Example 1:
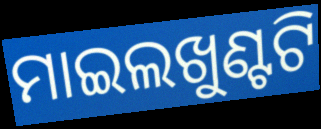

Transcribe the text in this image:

ମାଇଲଖୁଣ୍ଟଟି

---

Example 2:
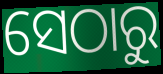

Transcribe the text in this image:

ସେଠାରୁ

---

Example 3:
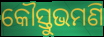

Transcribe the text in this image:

କୌସ୍ତୁଭମଣି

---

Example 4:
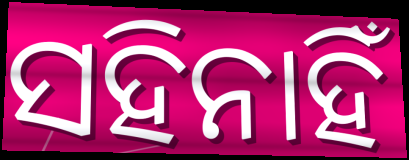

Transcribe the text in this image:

ସହିନାହିଁ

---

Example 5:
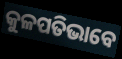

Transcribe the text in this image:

କୁଳପତିଭାବେ